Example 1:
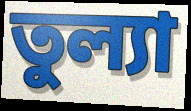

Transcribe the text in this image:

তুল্যা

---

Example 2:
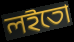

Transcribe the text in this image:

লইতো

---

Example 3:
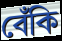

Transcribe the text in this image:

বেঁকি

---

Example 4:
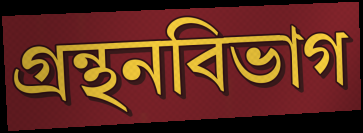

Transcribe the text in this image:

গ্রন্থনবিভাগ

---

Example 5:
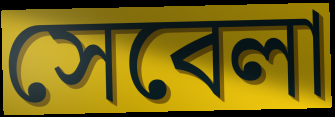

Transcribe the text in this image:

সেবেলা